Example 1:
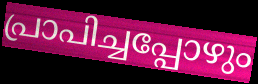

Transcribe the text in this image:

പ്രാപിച്ചപ്പോഴും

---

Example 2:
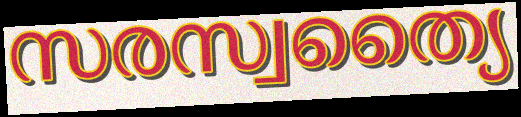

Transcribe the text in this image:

സരസ്വത്യൈ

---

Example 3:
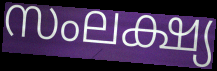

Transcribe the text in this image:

സംലക്ഷ്യ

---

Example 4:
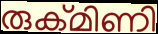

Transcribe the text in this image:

രുക്മിണി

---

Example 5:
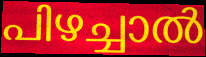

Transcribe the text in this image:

പിഴച്ചാൽ